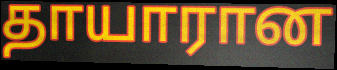
தாயாரான